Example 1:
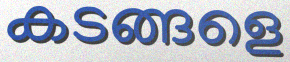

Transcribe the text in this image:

കടങ്ങളെ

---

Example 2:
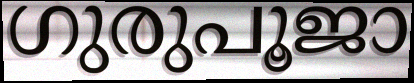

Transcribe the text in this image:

ഗുരുപൂജാ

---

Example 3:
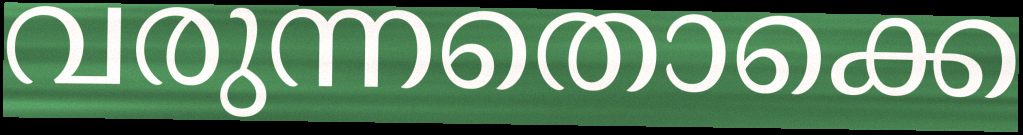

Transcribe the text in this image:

വരുന്നതൊക്കെ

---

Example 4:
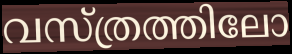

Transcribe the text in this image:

വസ്ത്രത്തിലോ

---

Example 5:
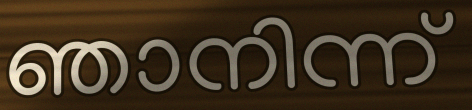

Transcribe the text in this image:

ഞാനിന്ന്